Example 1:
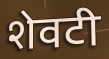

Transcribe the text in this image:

शेवटी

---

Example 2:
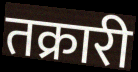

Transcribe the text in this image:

तक्रारी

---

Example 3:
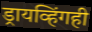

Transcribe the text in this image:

ड्रायव्हिंगही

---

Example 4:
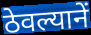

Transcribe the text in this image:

ठेवल्यानें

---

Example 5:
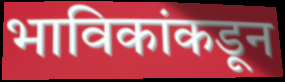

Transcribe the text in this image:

भाविकांकडून